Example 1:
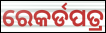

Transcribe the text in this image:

ରେକର୍ଡପତ୍ର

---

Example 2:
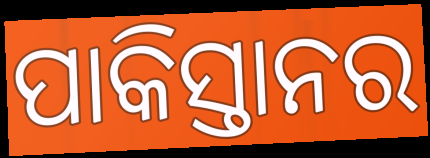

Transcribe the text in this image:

ପାକିସ୍ତାନର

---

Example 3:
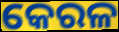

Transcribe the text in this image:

କେରଳ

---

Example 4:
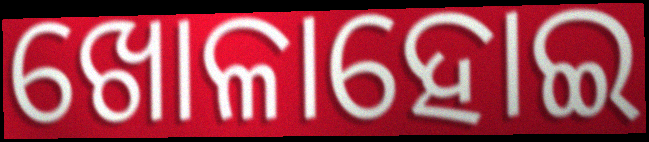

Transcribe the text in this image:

ଖୋଳାହୋଇ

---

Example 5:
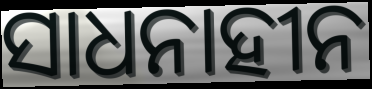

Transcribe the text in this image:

ସାଧନାହୀନ